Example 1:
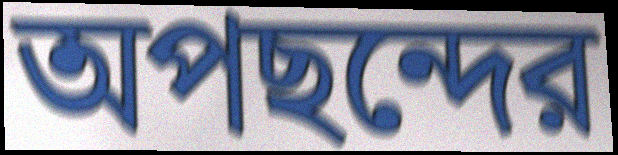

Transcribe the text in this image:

অপছন্দের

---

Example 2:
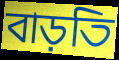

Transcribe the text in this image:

বাড়তি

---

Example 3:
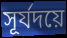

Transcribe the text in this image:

সূর্যদয়ে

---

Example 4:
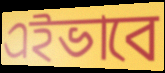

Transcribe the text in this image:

এইভাবে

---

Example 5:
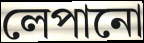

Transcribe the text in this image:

লেপানো